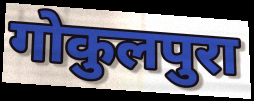
गोकुलपुरा